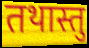
तथास्तु